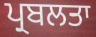
ਪ੍ਰਬਲਤਾ